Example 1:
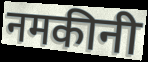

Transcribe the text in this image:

नमकीनी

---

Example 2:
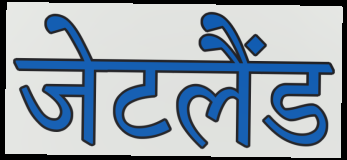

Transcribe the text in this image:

जेटलैंड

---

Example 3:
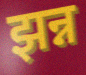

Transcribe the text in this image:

झन्न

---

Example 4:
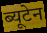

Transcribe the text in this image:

ब्यूटेन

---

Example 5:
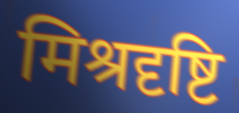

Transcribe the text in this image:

मिश्रदृष्टि